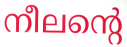
നീലന്റെ